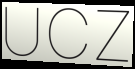
UCZ